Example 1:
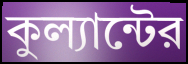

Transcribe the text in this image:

কুল্যান্টের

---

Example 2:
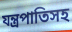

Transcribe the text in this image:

যন্ত্রপাতিসহ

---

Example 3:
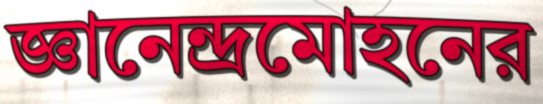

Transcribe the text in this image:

জ্ঞানেন্দ্রমোহনের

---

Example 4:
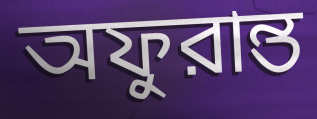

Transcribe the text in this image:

অফুরান্ত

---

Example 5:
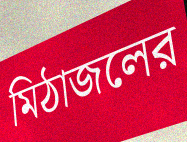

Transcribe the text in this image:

মিঠাজলের